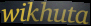
wikhuta